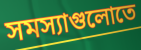
সমস্যাগুলোতে